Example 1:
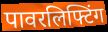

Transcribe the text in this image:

पावरलिफ्टिंग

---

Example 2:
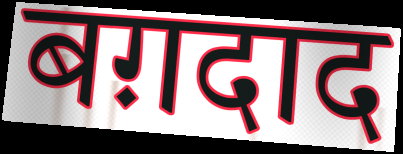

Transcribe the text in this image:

बग़दाद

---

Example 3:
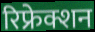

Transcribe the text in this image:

रिफ्रेक्शन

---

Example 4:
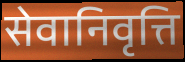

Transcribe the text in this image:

सेवानिवृत्ति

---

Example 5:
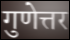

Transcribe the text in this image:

गुणेत्तर